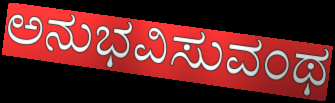
ಅನುಭವಿಸುವಂಥ